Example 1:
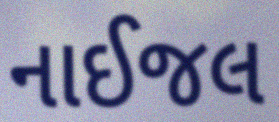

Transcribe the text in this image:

નાઈજલ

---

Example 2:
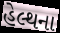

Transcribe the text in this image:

હેલ્થના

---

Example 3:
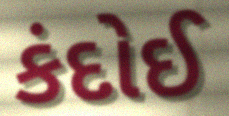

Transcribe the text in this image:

કંદોઈ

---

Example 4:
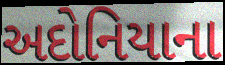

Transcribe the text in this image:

અદોનિયાના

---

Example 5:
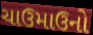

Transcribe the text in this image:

ચાઉમાઉનો